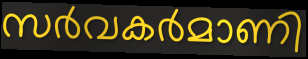
സർവകർമാണി